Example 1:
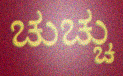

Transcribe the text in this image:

ಚುಚ್ಚು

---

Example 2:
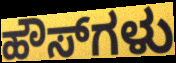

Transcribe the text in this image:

ಹೌಸ್‌ಗಳು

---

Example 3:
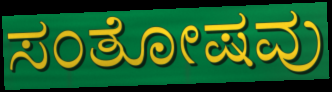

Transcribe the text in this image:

ಸಂತೋಷವು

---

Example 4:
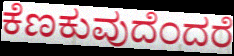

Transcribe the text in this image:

ಕೆಣಕುವುದೆಂದರೆ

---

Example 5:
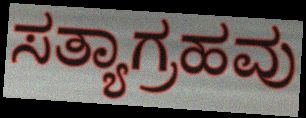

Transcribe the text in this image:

ಸತ್ಯಾಗ್ರಹವು